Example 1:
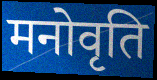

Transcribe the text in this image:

मनोवृति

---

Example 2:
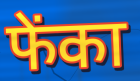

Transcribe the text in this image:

फेंका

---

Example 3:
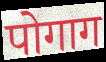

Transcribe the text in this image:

पोगाग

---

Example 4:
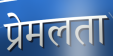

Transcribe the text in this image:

प्रेमलता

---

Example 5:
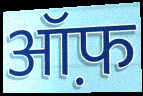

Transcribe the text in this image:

ऑ़फ